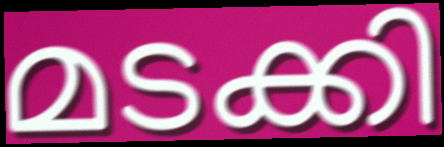
മടക്കി